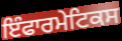
ਇੰਫਾਰਮੇਟਿਕਸ